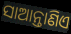
ସାଆନ୍ତାଣିଏ